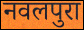
नवलपुरा